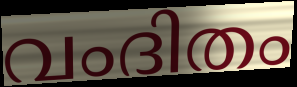
വംദിതം